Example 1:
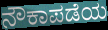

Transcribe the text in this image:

ನೌಕಾಪಡೆಯ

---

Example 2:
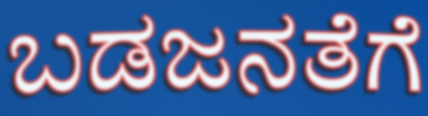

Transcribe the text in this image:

ಬಡಜನತೆಗೆ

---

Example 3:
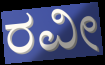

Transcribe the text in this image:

ರವೀ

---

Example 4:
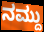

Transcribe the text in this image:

ನಮ್ದು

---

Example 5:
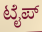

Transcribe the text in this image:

ಟೈಪ್